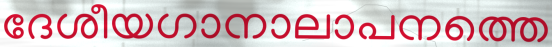
ദേശീയഗാനാലാപനത്തെ